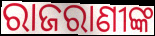
ରାଜରାଣୀଙ୍କ